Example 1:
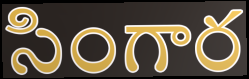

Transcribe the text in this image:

సింగార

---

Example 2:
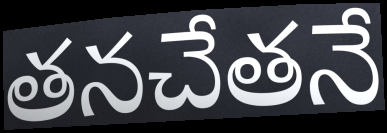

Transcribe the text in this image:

తనచేతనే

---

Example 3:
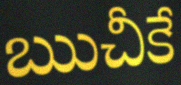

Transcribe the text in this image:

ఋచీకే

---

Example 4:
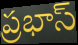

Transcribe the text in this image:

ప్రభాస్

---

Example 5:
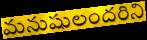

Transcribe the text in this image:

మనుషులందరిని